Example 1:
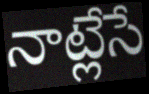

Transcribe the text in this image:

నాట్లేసే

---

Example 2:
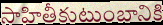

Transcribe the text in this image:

సాహితీకుటుంబానికి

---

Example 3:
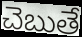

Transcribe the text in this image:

చెబుతే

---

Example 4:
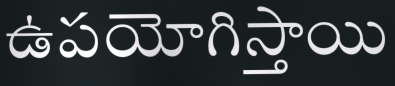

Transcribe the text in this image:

ఉపయోగిస్తాయి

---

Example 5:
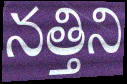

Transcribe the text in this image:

నత్తిని